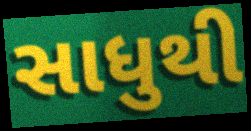
સાધુથી